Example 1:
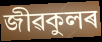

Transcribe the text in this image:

জীৱকুলৰ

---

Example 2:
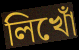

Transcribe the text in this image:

লিখোঁ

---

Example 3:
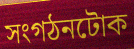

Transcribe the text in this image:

সংগঠনটোক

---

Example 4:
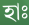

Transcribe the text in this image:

হাঃ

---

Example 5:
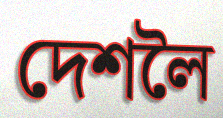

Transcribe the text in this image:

দেশলৈ